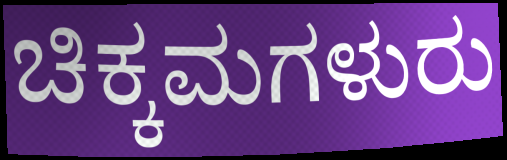
ಚಿಕ್ಕಮಗಳುರು